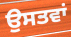
ਉਸਤਵਾਂ